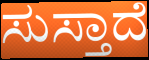
ಸುಸ್ತಾದೆ